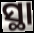
ସ୍ଥା